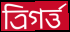
ত্রিগর্ত্ত